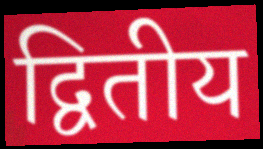
द्वितीय